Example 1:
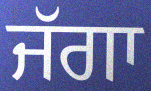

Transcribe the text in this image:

ਜੱਗਾ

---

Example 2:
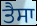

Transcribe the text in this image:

ਤੈਸਾ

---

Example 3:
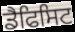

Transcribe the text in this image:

ਡੈਫਿਸਿਟ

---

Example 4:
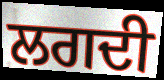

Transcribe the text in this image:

ਲਗਦੀ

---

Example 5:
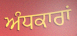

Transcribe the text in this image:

ਅੰਧਕਾਰਾਂ